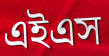
এইএস